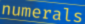
numerals